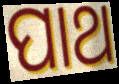
ପାଥ